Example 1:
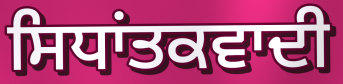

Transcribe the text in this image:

ਸਿਧਾਂਤਕਵਾਦੀ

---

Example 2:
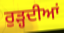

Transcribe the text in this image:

ਰੁੜ੍ਹਦੀਆਂ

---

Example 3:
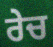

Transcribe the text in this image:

ਰੇਚ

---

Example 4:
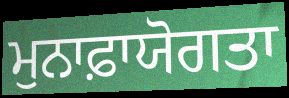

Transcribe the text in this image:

ਮੁਨਾਫ਼ਾਯੋਗਤਾ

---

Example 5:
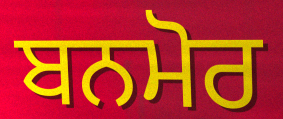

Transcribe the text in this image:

ਬਨਮੋਰ